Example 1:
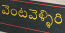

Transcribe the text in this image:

వెంటవెళ్ళిరి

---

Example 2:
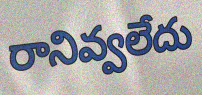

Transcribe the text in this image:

రానివ్వలేదు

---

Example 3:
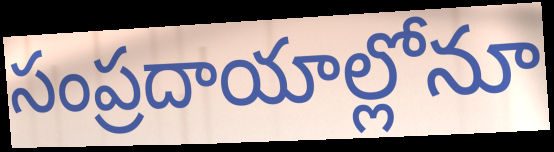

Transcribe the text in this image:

సంప్రదాయాల్లోనూ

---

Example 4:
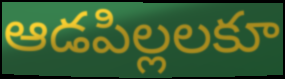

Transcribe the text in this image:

ఆడపిల్లలకూ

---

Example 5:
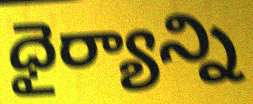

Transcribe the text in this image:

ధైర్యాన్ని